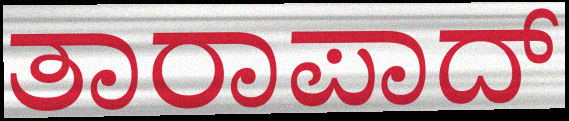
ತಾರಾಪಾದ್